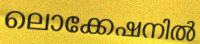
ലൊക്കേഷനിൽ